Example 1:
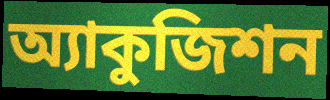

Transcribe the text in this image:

অ্যাকুজিশন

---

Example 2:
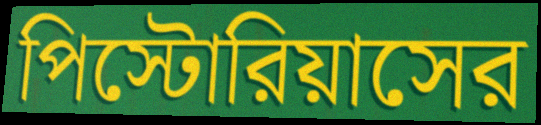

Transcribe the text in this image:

পিস্টোরিয়াসের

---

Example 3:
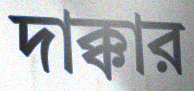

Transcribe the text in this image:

দাক্কার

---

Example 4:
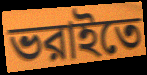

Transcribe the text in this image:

ভরাইতে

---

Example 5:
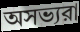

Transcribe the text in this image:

অসভ্যরা